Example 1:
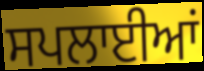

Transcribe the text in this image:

ਸਪਲਾਈਆਂ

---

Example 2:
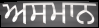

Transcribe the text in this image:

ਅਸਮਾਨ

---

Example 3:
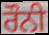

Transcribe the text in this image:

ਰੌਨੀ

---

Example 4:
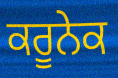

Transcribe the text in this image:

ਕਰੂਨੇਕ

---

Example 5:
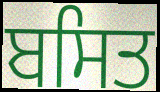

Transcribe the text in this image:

ਬਸਿਤ